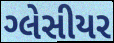
ગ્લેસીયર